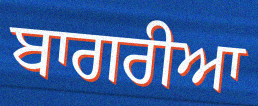
ਬਾਗਰੀਆ